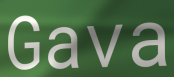
Gava